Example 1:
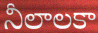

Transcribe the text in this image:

నీలాలకా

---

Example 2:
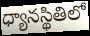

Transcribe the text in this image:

ధ్యానస్థితిలో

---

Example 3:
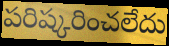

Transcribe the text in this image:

పరిష్కరించలేదు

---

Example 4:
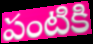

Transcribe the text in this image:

పంటికి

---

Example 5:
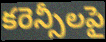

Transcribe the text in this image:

కరెన్సీలపై